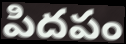
పిదపం